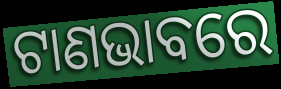
ଟାଣଭାବରେ